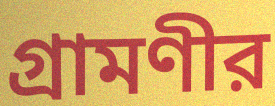
গ্রামণীর